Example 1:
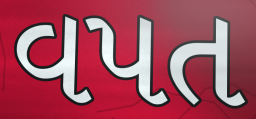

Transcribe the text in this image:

વપત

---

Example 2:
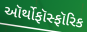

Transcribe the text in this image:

ઑર્થોફૉસ્ફૉરિક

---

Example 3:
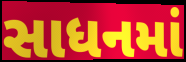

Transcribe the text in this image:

સાધનમાં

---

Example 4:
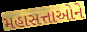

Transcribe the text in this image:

મહાસત્તાઓને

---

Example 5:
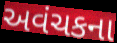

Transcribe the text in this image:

અવંચકના